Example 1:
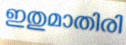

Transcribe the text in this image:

ഇതുമാതിരി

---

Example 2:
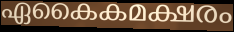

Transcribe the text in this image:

ഏകൈകമക്ഷരം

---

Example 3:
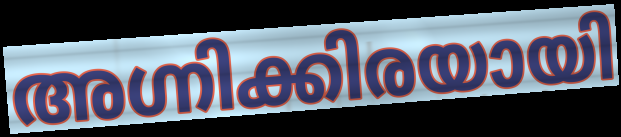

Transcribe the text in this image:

അഗ്നിക്കിരയായി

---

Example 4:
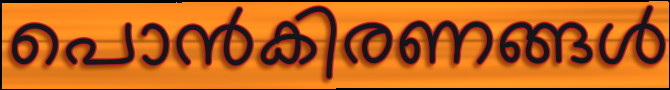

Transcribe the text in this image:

പൊൻകിരണങ്ങൾ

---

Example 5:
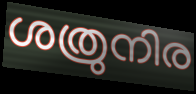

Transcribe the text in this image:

ശത്രുനിര